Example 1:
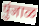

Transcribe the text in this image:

पुंजाळ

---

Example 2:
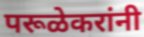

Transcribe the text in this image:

परूळेकरांनी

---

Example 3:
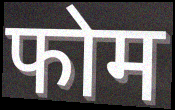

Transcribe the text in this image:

फोम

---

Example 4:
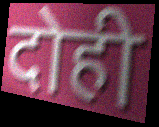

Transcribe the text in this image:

दोही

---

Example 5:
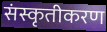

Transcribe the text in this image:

संस्कृतीकरण